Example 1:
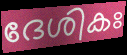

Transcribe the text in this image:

ദേശികഃ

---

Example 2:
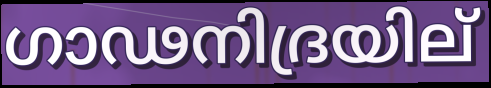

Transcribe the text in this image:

ഗാഢനിദ്രയില്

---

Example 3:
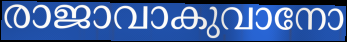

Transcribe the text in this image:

രാജാവാകുവാനോ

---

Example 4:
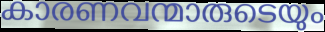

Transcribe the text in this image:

കാരണവന്മാരുടെയും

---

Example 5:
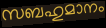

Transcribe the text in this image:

സബഹുമാനം